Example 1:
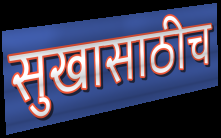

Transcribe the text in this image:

सुखासाठीच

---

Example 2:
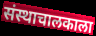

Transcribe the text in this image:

संस्थाचालकाला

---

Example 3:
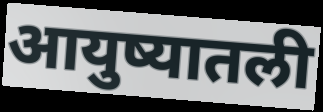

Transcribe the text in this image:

आयुष्यातली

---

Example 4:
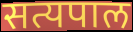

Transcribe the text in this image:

सत्यपाल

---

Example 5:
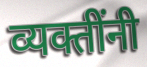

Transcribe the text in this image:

व्यक्तींनी